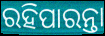
ରହିପାରନ୍ତା